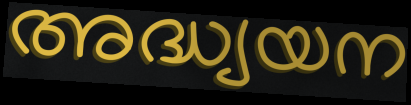
അദ്ധ്യയന